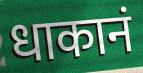
धाकानं